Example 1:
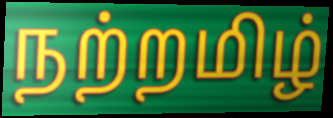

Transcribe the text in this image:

நற்றமிழ்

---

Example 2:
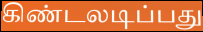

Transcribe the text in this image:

கிண்டலடிப்பது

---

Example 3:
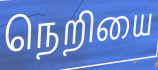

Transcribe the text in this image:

நெறியை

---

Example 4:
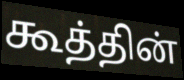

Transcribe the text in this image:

கூத்தின்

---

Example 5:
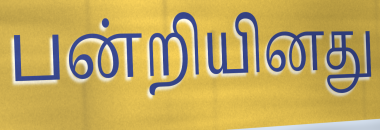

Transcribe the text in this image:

பன்றியினது